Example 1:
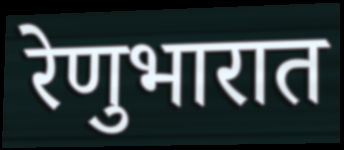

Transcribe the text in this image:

रेणुभारात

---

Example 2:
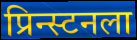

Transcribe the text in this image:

प्रिन्स्टनला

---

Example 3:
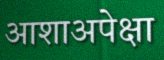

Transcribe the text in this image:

आशाअपेक्षा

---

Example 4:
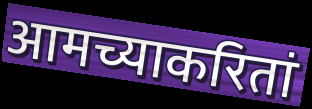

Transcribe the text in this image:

आमच्याकरितां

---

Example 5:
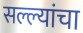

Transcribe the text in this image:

सल्ल्यांचा